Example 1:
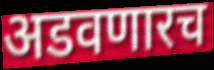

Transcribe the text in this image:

अडवणारच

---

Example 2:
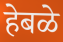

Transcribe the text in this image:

हेबळे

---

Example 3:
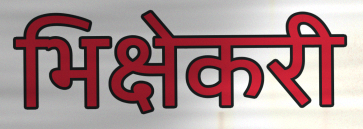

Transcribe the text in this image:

भिक्षेकरी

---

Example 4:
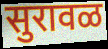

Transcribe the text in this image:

सुरावळ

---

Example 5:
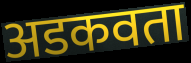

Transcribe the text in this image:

अडकवता